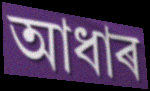
আধাৰ